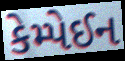
કેમ્પેઈન